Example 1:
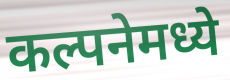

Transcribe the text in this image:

कल्पनेमध्ये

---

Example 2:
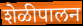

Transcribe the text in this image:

शेळीपालन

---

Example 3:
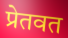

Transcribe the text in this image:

प्रेतवत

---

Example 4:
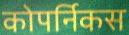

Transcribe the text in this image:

कोपर्निकस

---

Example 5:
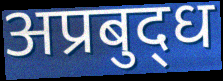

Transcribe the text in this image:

अप्रबुद्ध